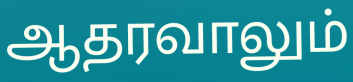
ஆதரவாலும்